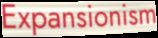
Expansionism